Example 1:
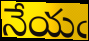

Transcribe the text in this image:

నేయఁ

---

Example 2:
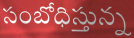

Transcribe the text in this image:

సంబోధిస్తున్న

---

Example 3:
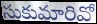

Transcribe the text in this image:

సుకుమారివో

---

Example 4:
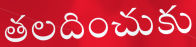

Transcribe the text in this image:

తలదించుకు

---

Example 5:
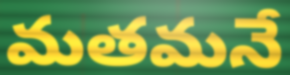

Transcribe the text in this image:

మతమనే